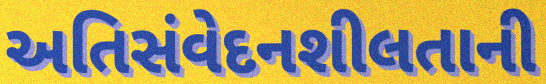
અતિસંવેદનશીલતાની